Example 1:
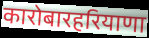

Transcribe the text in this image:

कारोबारहरियाणा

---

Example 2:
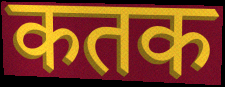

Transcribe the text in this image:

कतक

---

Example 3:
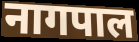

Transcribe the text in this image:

नागपाल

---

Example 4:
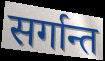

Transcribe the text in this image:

सर्गान्त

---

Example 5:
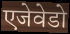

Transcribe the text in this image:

एजेवेडो